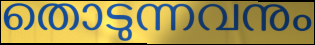
തൊടുന്നവനും